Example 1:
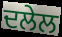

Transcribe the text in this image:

ਦਲੇਲ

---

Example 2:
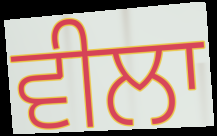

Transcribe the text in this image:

ਵੀਲਾ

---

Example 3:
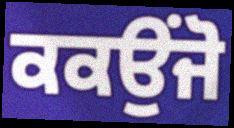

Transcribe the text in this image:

ਕਕਉਂਜੋ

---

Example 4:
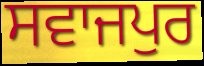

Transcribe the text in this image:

ਸਵਾਜਪੁਰ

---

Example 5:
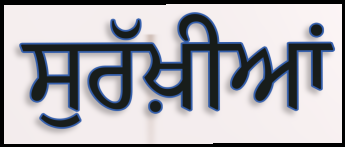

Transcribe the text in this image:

ਸੁਰੱਖ਼ੀਆਂ